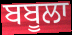
ਬਬੂਲਾ